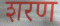
शरण